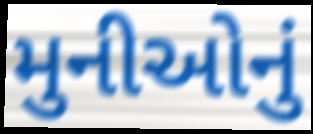
મુનીઓનું